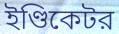
ইণ্ডিকেটর